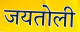
जयतोली